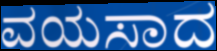
ವಯಸಾದ